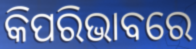
କିପରିଭାବରେ